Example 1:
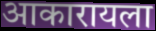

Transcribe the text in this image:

आकारायला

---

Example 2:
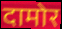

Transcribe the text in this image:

दामोर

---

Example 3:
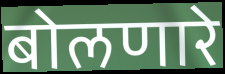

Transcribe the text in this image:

बोलणारे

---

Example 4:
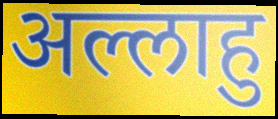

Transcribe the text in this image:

अल्लाहु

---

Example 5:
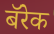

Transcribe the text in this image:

बॅरेक